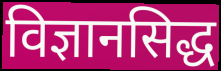
विज्ञानसिद्ध